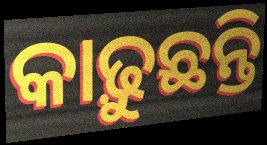
କାଢ଼ୁଛନ୍ତି